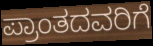
ಪ್ರಾಂತದವರಿಗೆ